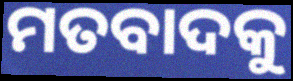
ମତବାଦକୁ